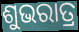
ଶୁଭରାତ୍ର